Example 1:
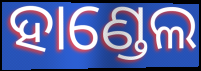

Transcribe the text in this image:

ହାଣ୍ଡେଲ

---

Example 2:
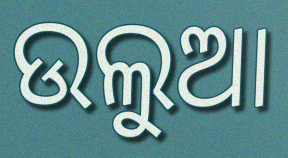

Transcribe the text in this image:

ଉଲୁଆ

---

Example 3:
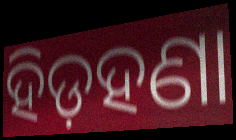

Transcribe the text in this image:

ହିଡ଼ହଣା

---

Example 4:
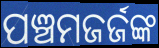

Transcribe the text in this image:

ପଞ୍ଚମଜର୍ଜଙ୍କ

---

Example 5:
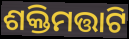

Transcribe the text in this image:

ଶକ୍ତିମତ୍ତାଟି